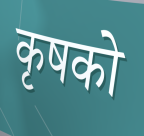
कृषको